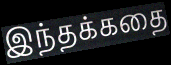
இந்தக்கதை